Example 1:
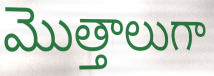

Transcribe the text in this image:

మొత్తాలుగా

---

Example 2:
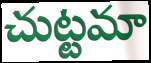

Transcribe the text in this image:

చుట్టమా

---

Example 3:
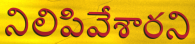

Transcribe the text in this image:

నిలిపివేశారని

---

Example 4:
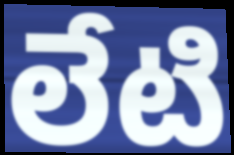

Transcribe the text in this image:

లేటి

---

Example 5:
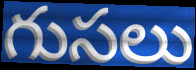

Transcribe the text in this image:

గుసలు